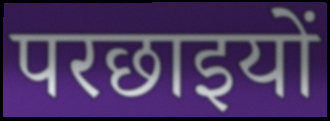
परछाइयों